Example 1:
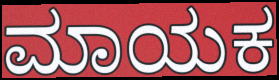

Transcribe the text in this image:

ಮಾಯಕ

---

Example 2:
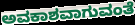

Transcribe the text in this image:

ಅವಕಾಶವಾಗುವಂತೆ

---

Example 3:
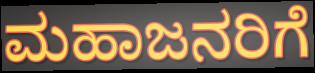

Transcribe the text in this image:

ಮಹಾಜನರಿಗೆ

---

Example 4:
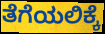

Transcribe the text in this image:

ತೆಗೆಯಲಿಕ್ಕೆ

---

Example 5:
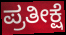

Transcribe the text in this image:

ಪ್ರತೀಕ್ಷೆ